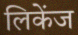
लिकेंज